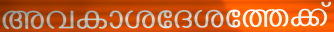
അവകാശദേശത്തേക്ക്